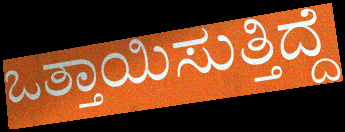
ಒತ್ತಾಯಿಸುತ್ತಿದ್ದೆ